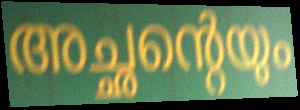
അച്ഛന്റെയും